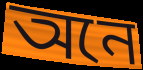
অনে